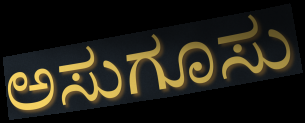
ಅಸುಗೂಸು